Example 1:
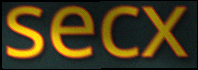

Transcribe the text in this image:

secx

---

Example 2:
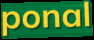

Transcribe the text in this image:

ponal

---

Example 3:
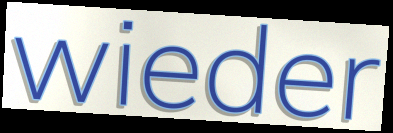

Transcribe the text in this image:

wieder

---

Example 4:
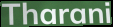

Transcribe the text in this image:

Tharani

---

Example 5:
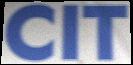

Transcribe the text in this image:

CIT